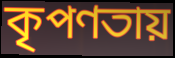
কৃপণতায়